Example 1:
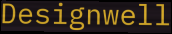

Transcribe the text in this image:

Designwell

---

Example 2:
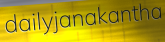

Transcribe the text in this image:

dailyjanakantha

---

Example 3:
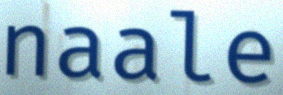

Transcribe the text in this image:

naale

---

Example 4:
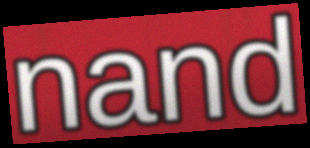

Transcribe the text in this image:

nand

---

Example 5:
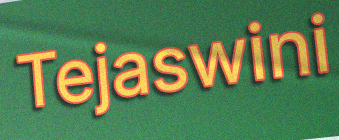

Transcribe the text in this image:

Tejaswini